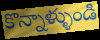
కొన్నాళ్ళుండి